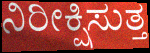
ನಿರೀಕ್ಷಿಸುತ್ತ